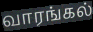
வாரங்கல்